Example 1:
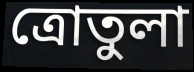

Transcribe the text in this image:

ত্রোতুলা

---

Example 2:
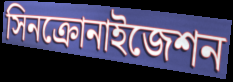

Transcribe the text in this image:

সিনক্রোনাইজেশন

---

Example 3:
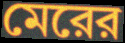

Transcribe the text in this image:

মেরের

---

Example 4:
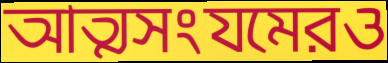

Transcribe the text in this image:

আত্মসংযমেরও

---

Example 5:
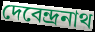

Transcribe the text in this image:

দেবেন্দ্রনাথ